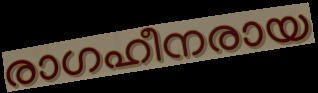
രാഗഹീനരായ